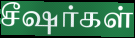
சீஷர்கள்